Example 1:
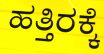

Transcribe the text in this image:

ಹತ್ತಿರಕ್ಕೆ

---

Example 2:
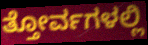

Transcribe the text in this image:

ತ್ತೋರ್ವಗಳಲ್ಲಿ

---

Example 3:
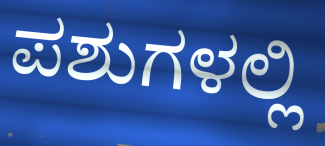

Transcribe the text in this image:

ಪಶುಗಳಲ್ಲಿ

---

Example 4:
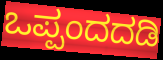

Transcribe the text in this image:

ಒಪ್ಪಂದದಡಿ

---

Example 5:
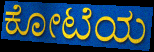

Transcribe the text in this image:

ಕೋಟೆಯ